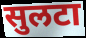
सुलटा